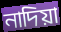
নাদিয়া